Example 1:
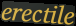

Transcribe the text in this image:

erectile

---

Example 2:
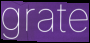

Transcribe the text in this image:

grate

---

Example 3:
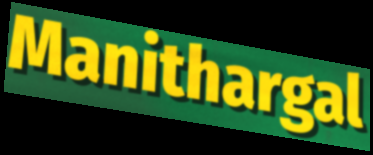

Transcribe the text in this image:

Manithargal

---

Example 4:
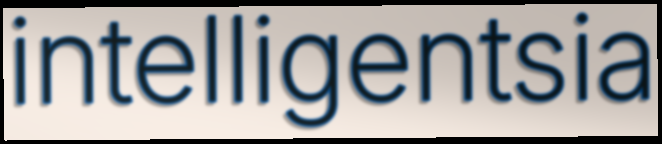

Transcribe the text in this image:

intelligentsia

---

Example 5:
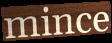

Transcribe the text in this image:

mince